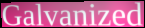
Galvanized